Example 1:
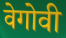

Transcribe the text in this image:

वेगोवी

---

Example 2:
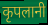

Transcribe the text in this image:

कृपलानी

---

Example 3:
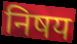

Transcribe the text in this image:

निषय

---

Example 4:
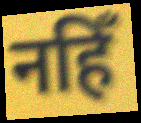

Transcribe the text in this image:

नहिँ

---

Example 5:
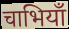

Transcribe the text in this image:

चाभियाँ